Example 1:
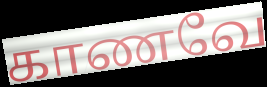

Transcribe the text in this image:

காணவே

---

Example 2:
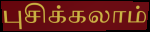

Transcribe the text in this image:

புசிக்கலாம்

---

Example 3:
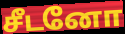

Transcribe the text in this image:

சீடனோ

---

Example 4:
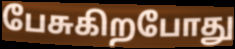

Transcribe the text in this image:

பேசுகிறபோது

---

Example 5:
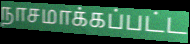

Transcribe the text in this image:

நாசமாக்கப்பட்ட